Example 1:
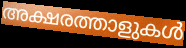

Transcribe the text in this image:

അക്ഷരത്താളുകൾ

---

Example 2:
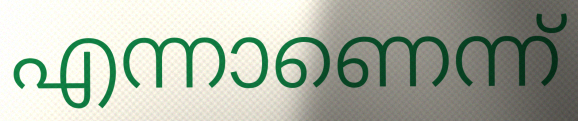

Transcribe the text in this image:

എന്നാണെന്ന്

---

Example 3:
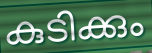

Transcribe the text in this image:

കുടിക്കും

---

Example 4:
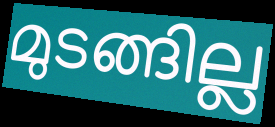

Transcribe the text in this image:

മുടങ്ങില്ല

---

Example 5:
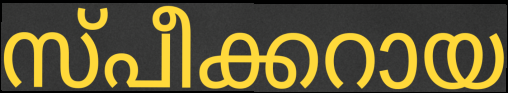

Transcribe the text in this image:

സ്പീക്കറായ